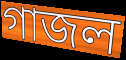
গাজল